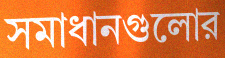
সমাধানগুলোর